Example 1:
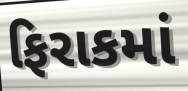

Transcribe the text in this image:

ફિરાકમાં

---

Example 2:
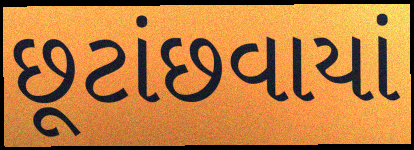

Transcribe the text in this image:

છૂટાંછવાયાં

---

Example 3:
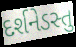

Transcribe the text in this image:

દર્શનેડસ્તુ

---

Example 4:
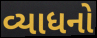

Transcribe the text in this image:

વ્યાધનો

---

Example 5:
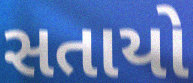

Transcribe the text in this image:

સતાયો